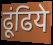
ढूंढिये